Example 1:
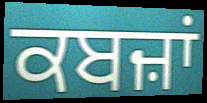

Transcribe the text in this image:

ਕਬਜ਼ਾਂ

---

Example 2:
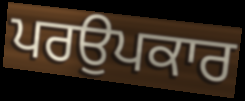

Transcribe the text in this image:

ਪਰਉਪਕਾਰ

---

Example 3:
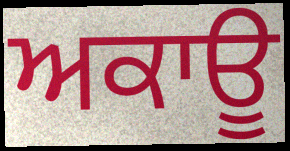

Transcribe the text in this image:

ਅਕਾਊ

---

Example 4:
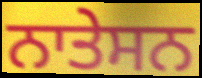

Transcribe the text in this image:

ਨਾਤੇਸਨ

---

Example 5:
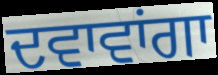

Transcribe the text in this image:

ਦਵਾਵਾਂਗਾ